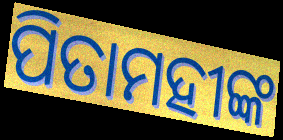
ପିତାମହୀଙ୍କ